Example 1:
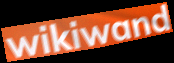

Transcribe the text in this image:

wikiwand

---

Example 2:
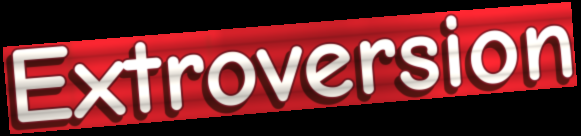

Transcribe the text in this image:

Extroversion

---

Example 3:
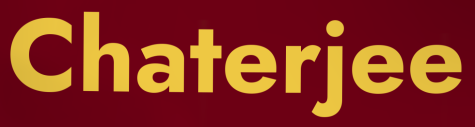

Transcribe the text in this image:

Chaterjee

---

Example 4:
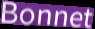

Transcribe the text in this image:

Bonnet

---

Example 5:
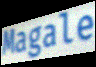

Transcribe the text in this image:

Magale